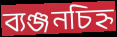
ব্যঞ্জনচিহ্ন